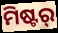
ମିଷ୍ଟର୍